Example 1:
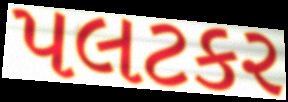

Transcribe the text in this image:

પલટકર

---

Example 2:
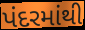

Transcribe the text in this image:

પંદરમાંથી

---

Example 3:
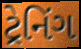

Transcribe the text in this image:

ટ્રેનિંગ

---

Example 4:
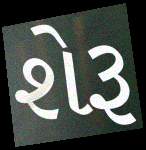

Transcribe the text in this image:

શેરૂ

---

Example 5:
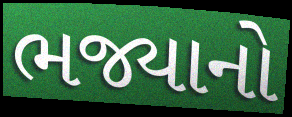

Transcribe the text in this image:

ભજ્યાનો